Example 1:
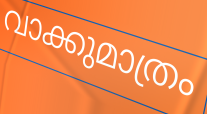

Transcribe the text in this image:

വാക്കുമാത്രം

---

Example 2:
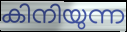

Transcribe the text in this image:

കിനിയുന്ന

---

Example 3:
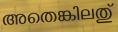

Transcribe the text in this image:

അതെങ്കിലതു്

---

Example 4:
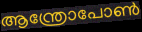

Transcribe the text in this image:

ആന്ത്രോപോൺ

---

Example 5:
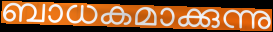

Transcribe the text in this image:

ബാധകമാക്കുന്നു